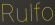
Rulfo